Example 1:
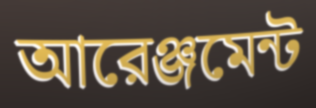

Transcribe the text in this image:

আরেঞ্জমেন্ট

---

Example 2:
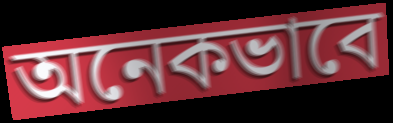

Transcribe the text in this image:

অনেকভাবে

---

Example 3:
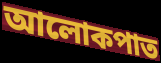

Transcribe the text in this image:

আলোকপাত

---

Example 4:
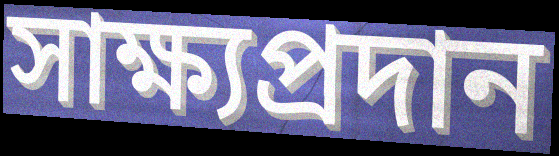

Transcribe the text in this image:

সাক্ষ্যপ্রদান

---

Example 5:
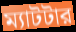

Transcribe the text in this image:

ম্যাটটার